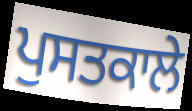
ਪੁਸਤਕਾਲੇ